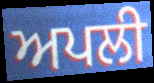
ਅਪਲੀ